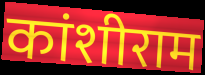
कांशीराम